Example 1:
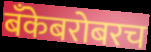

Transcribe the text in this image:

बँकेबरोबरच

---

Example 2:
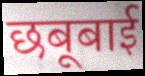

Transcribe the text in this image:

छबूबाई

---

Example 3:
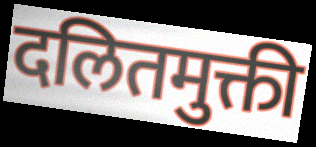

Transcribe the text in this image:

दलितमुक्ती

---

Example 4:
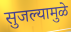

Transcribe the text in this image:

सुजल्यामुळे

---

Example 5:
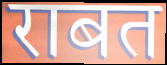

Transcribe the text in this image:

राबत